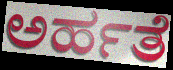
ಅರ್ಹತೆ